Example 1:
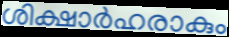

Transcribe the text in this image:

ശിക്ഷാർഹരാകും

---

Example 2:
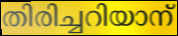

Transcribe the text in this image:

തിരിച്ചറിയാന്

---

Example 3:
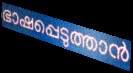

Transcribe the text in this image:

ഭാഷപ്പെടുത്താൻ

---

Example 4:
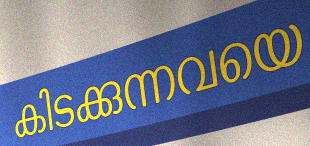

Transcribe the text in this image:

കിടക്കുന്നവയെ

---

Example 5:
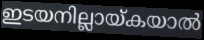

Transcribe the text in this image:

ഇടയനില്ലായ്കയാൽ